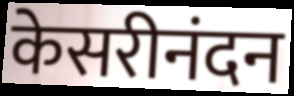
केसरीनंदन